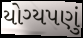
યોગ્યપણું